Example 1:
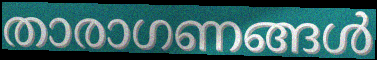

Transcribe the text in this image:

താരാഗണങ്ങൾ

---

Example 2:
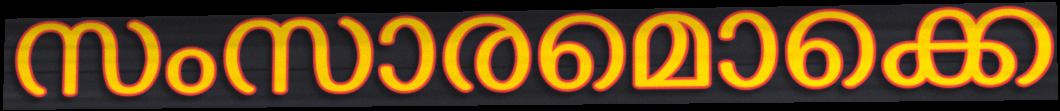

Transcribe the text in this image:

സംസാരമൊക്കെ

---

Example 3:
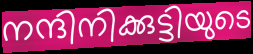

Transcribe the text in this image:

നന്ദിനിക്കുട്ടിയുടെ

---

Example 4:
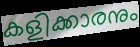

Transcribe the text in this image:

കളിക്കാരനും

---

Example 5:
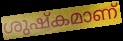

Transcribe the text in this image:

ശുഷ്കമാണ്